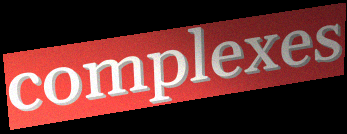
complexes